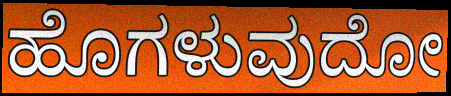
ಹೊಗಳುವುದೋ